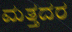
ಮತ್ತದರ